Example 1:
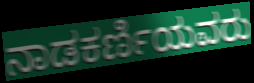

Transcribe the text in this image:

ನಾಡಕರ್ಣಿಯವರು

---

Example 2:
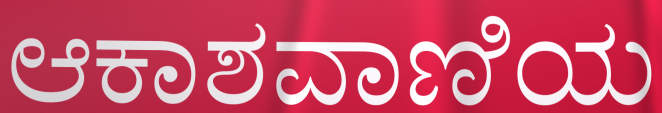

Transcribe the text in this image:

ಆಕಾಶವಾಣಿಯ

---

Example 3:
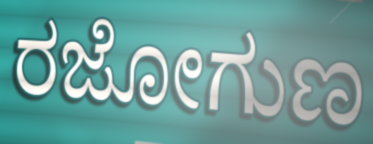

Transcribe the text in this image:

ರಜೋಗುಣ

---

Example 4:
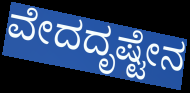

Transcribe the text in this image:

ವೇದದೃಷ್ಟೇನ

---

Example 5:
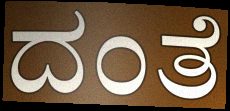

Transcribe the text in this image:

ದಂತೆ